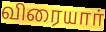
விரையார்